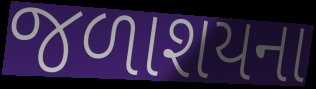
જળાશયના